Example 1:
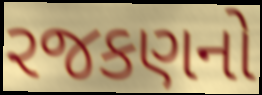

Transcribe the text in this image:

રજકણનો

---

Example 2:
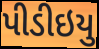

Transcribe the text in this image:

પીડીઇયુ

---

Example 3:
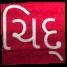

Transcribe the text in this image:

ચિદ્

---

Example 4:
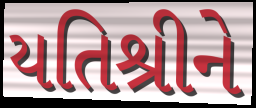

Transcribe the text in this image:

યતિશ્રીને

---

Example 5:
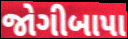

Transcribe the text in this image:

જોગીબાપા